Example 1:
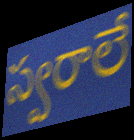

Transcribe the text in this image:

స్వరాలే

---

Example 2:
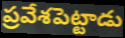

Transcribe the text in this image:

ప్రవేశపెట్టాడు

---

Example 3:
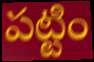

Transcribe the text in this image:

పట్టిం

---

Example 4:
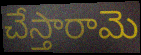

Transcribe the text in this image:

చేస్తారామె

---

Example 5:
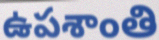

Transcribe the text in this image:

ఉపశాంతి